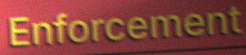
Enforcement